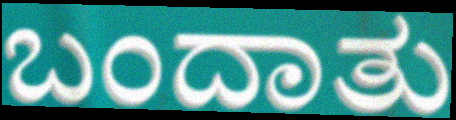
ಬಂದಾತು